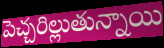
పెచ్చరిల్లుతున్నాయి